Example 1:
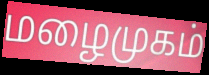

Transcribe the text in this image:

மழைமுகம்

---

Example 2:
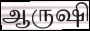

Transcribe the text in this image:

ஆருஷி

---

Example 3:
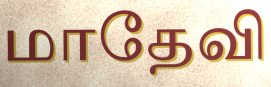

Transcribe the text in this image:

மாதேவி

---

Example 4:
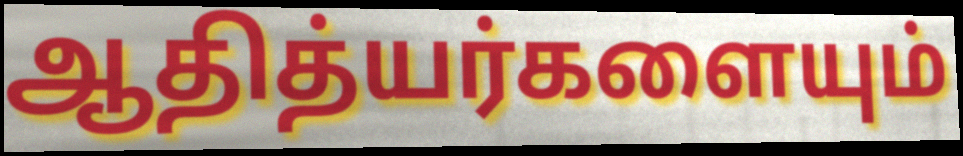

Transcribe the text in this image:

ஆதித்யர்களையும்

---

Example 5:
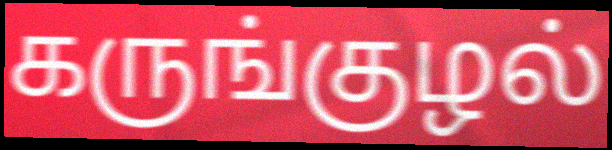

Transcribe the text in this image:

கருங்குழல்